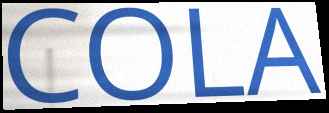
COLA